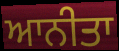
ਆਨੀਤਾ